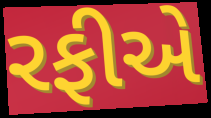
રફીએ